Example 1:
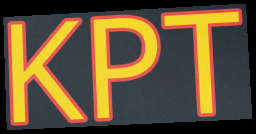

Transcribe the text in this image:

KPT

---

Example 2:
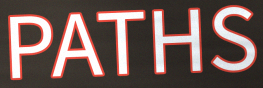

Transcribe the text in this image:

PATHS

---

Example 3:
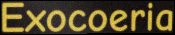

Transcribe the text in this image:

Exocoeria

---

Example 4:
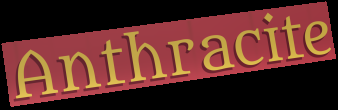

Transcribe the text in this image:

Anthracite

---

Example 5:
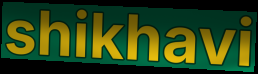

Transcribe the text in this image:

shikhavi